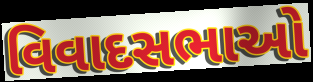
વિવાદસભાઓ